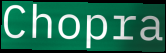
Chopra